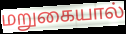
மறுகையால்